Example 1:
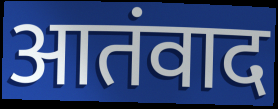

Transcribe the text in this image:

आतंवाद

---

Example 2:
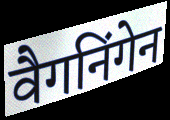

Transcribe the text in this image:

वैगनिंगेन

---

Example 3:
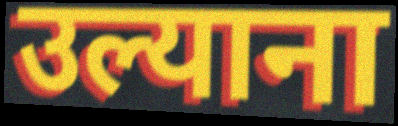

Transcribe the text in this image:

उल्याना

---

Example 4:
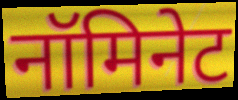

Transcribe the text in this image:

नॉमिनेट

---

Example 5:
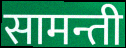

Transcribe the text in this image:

सामन्ती